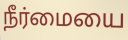
நீர்மையை